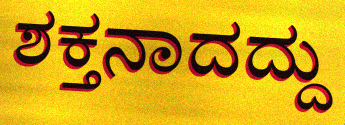
ಶಕ್ತನಾದದ್ದು